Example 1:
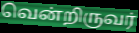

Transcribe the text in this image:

வென்றிருவர்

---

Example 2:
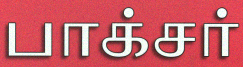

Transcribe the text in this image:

பாக்சர்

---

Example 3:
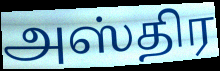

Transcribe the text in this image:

அஸ்திர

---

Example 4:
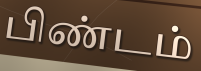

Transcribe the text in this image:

பிண்டம்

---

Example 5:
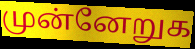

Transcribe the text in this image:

முன்னேறுக